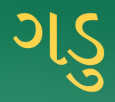
ગડુ